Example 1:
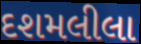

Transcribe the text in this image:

દશમલીલા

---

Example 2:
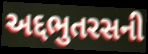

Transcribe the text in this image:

અદ્દભુતરસની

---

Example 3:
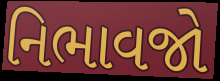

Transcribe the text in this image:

નિભાવજો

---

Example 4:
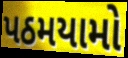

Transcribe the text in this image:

પઠમયામો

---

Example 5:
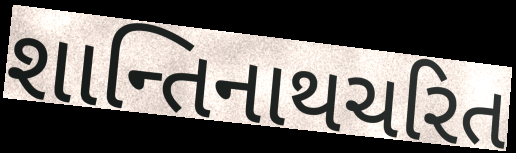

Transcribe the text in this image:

શાન્તિનાથચરિત